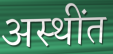
अस्थींत